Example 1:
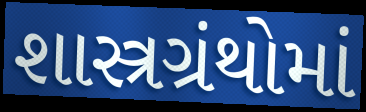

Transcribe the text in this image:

શાસ્ત્રગ્રંથોમાં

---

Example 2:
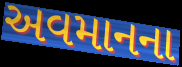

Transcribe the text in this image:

અવમાનના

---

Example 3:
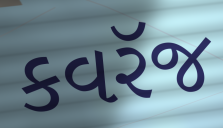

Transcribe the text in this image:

કવરૅજ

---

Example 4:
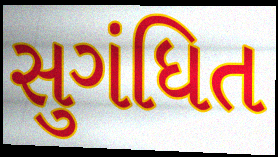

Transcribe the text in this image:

સુગંધિત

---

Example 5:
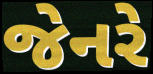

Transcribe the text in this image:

જેનરે